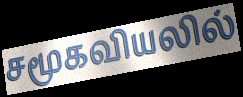
சமூகவியலில்